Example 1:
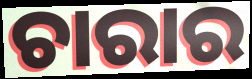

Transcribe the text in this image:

ଚାରାର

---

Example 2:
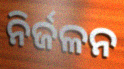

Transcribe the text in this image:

ନିର୍ଜଳନ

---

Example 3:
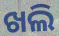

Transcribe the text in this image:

ଖଲି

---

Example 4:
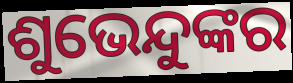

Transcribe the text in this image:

ଶୁଭେନ୍ଦୁଙ୍କର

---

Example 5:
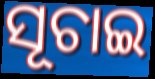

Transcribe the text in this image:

ସୂଚାଇ